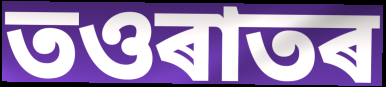
তওৰাতৰ